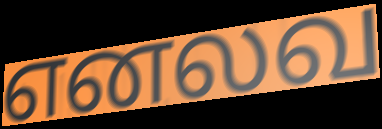
எனலவ